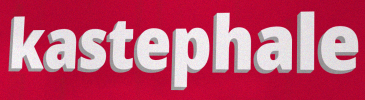
kastephale